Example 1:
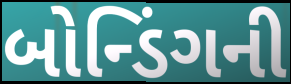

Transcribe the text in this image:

બોન્ડિંગની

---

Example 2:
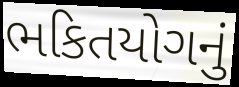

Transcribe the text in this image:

ભકિતયોગનું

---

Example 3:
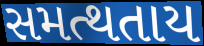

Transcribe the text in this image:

સમત્થતાય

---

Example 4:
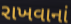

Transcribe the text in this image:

રાખવાનાં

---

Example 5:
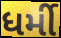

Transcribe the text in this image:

ધર્મી